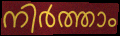
നിർത്താം